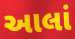
આલાં